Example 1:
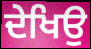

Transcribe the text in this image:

ਦੇਖਿਉ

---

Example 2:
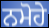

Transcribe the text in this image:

ਨਮੋਹੇ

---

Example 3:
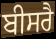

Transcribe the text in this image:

ਬੀਸਰੈ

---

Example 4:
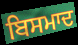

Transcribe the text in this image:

ਬਿਸਮਾਦ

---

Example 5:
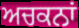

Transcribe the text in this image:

ਅਚਕਨਾਂ